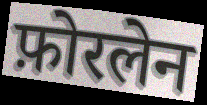
फ़ोरलेन